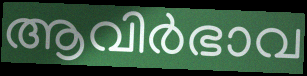
ആവിർഭാവ